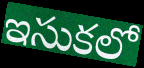
ఇసుకలో